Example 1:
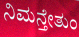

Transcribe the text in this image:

ನಿಮನ್ತೇತುಂ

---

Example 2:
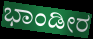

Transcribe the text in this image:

ಭಾಂಡೀರ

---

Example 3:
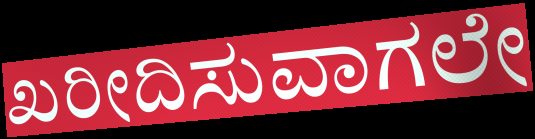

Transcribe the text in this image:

ಖರೀದಿಸುವಾಗಲೇ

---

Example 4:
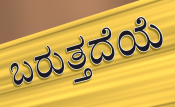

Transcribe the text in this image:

ಬರುತ್ತದೆಯೆ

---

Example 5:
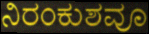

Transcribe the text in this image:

ನಿರಂಕುಶವೂ